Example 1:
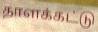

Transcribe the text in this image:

தாளக்கட்டு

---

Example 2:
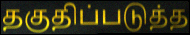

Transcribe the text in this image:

தகுதிப்படுத்த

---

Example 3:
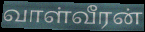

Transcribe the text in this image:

வாள்வீரன்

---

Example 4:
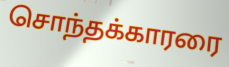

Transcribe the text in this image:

சொந்தக்காரரை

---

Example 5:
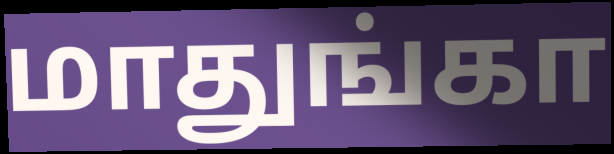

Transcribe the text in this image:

மாதுங்கா